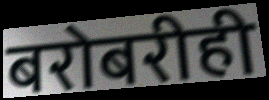
बरोबरीही